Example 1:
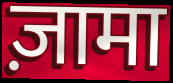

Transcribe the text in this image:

ज़ामा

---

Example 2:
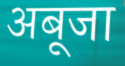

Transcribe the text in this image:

अबूजा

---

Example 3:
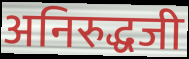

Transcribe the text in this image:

अनिरुद्धजी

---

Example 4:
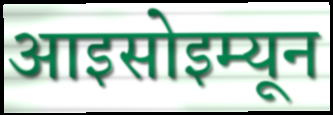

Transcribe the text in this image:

आइसोइम्यून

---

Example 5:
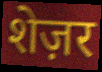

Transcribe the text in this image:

शेज़र